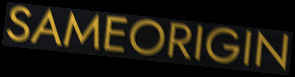
SAMEORIGIN